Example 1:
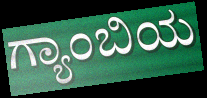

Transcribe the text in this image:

ಗ್ಯಾಂಬಿಯ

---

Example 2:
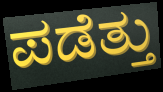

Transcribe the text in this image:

ಪಡೆತ್ತು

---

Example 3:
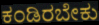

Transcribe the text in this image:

ಕಂಡಿರಬೇಕು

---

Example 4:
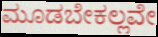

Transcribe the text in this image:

ಮೂಡಬೇಕಲ್ಲವೇ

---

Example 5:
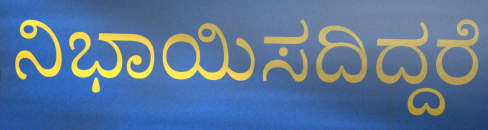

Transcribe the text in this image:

ನಿಭಾಯಿಸದಿದ್ದರೆ